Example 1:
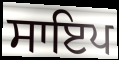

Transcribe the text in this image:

ਸਾਇਪ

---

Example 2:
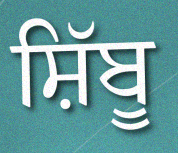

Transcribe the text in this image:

ਸ਼ਿੱਬੂ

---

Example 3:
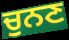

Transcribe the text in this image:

ਚੁਨਣ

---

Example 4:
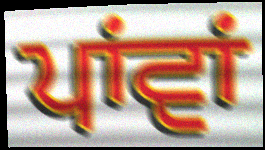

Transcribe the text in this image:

ਪਾਂਵਾਂ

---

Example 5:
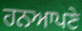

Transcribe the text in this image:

ਹਨਆਪਣੇ